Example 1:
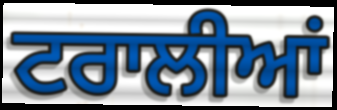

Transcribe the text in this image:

ਟਰਾਲੀਆਂ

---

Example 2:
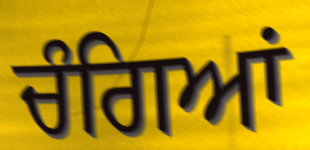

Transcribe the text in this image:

ਚੰਗਿਆਂ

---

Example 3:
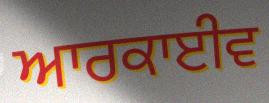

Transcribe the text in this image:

ਆਰਕਾਈਵ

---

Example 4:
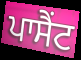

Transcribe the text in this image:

ਪਾਸੈਂਟ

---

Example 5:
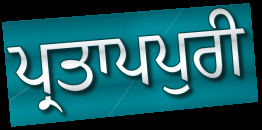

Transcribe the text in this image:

ਪ੍ਰਤਾਪਪੁਰੀ